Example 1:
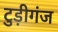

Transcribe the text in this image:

टुड़ीगंज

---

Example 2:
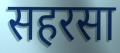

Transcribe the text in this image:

सहरसा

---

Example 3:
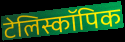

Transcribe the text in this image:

टेलिस्कॉपिक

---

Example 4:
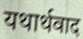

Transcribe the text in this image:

यथार्थवाद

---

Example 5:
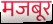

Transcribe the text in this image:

मजबूर